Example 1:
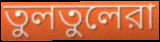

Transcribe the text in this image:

তুলতুলেরা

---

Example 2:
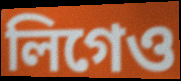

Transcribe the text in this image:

লিগেও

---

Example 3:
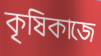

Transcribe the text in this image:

কৃষিকাজে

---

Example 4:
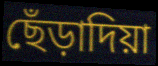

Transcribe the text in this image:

ছেঁড়াদিয়া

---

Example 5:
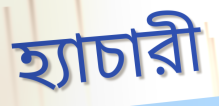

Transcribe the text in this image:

হ্যাচারী